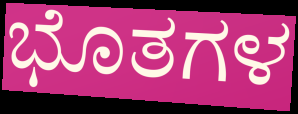
ಭೊತಗಳ